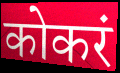
कोकरं